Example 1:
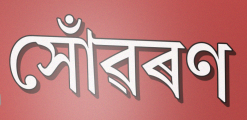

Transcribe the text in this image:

সোঁৱৰণ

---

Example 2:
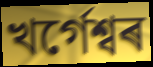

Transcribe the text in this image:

খৰ্গেশ্বৰ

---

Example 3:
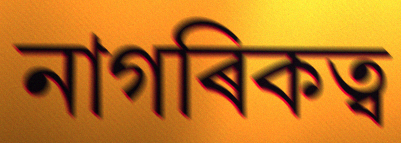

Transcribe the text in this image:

নাগৰিকত্ব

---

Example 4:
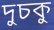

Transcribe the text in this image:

দুচকু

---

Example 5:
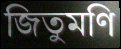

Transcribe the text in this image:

জিতুমণি